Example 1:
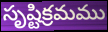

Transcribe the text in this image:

సృష్టిక్రమము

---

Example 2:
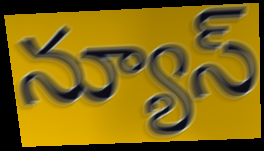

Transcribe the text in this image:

న్యూస్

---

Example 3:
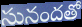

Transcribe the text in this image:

సునందతో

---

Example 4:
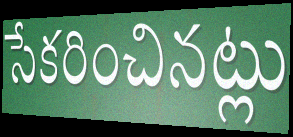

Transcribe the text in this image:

సేకరించినట్లు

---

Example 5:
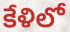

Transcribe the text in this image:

కేళిలో